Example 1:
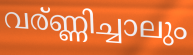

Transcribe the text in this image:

വര്ണ്ണിച്ചാലും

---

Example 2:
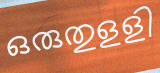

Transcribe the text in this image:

ഒരുതുളളി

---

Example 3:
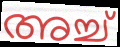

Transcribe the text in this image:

അച്ച്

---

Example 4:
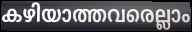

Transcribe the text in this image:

കഴിയാത്തവരെല്ലാം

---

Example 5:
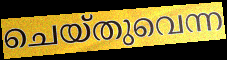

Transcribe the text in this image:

ചെയ്തുവെന്ന